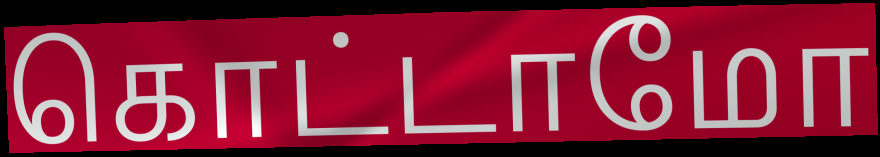
கொட்டாமோ